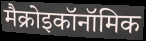
मैक्रोइकॉनॉमिक